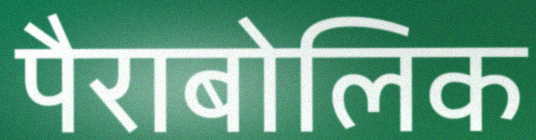
पैराबोलिक